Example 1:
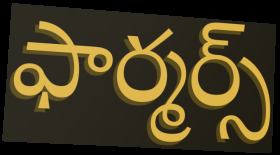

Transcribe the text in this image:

ఫార్మర్స్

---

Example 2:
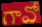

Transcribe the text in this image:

గావో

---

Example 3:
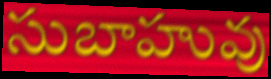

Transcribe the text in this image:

సుబాహువు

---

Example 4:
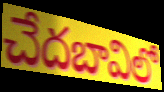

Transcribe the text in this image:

చేదబావిలో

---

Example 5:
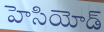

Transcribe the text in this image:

హెసియోడ్